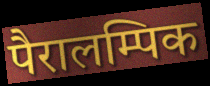
पैरालम्पिक